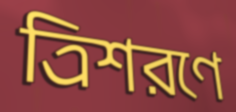
ত্রিশরণে